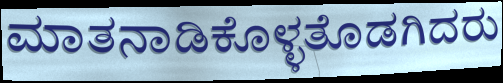
ಮಾತನಾಡಿಕೊಳ್ಳತೊಡಗಿದರು